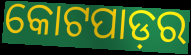
କୋଟପାଡ଼ର